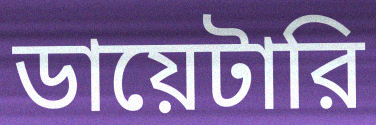
ডায়েটারি